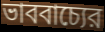
ভাববাচ্যের